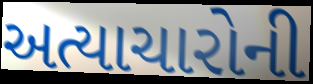
અત્યાચારોની